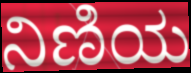
ನಿಣಿಯ